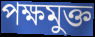
পক্ষমুক্ত